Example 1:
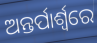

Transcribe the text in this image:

ଅନ୍ତର୍ପାର୍ଶ୍ୱରେ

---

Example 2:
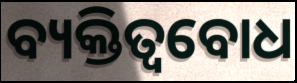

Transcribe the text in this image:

ବ୍ୟକ୍ତିତ୍ୱବୋଧ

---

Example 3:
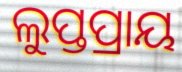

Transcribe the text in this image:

ଲୁପ୍ତପ୍ରାୟ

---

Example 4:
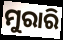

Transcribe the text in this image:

ମୁରାରି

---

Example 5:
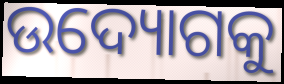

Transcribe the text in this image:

ଉଦ୍ୟୋଗକୁ